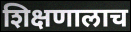
शिक्षणालाच